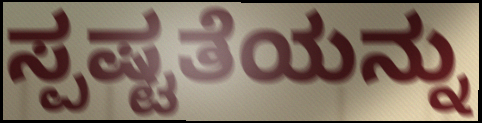
ಸ್ಪಷ್ಟತೆಯನ್ನು